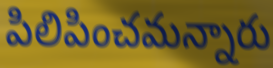
పిలిపించమన్నారు